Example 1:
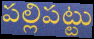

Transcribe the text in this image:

పల్లిపట్టు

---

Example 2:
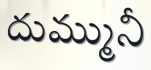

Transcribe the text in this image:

దుమ్మునీ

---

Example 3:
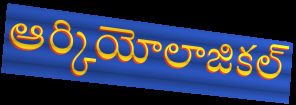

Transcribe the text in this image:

ఆర్కియోలాజికల్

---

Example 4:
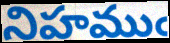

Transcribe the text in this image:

నిహముఁ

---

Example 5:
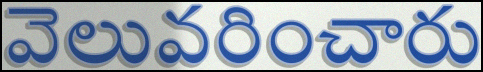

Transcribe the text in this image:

వెలువరించారు